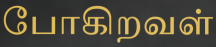
போகிறவள்